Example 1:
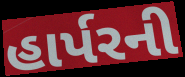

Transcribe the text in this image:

હાર્પરની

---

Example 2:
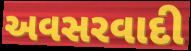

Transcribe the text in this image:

અવસરવાદી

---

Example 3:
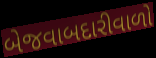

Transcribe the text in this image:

બેજવાબદારીવાળો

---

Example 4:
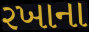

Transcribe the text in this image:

રખાના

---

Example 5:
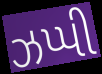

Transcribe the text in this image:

ઝપ્પી